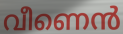
വീണെൻ